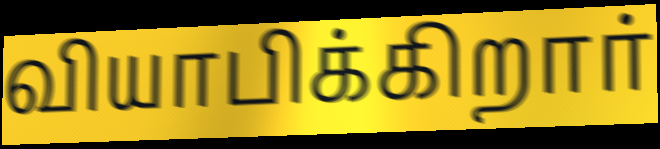
வியாபிக்கிறார்